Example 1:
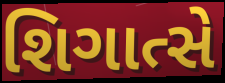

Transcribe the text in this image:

શિગાત્સે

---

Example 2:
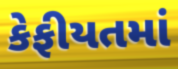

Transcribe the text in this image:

કેફીયતમાં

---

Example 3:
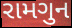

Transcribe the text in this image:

રામગુન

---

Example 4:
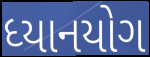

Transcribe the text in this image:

ધ્યાનયોગ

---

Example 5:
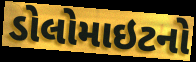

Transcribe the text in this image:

ડોલોમાઇટનો